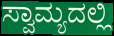
ಸ್ವಾಮ್ಯದಲ್ಲಿ